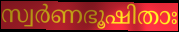
സ്വർണഭൂഷിതാഃ